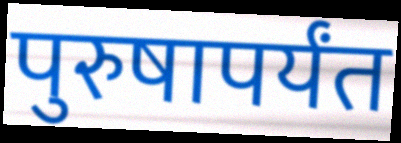
पुरुषापर्यंत